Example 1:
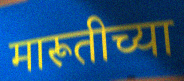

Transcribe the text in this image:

मारूतीच्या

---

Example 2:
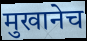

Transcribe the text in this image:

मुखानेच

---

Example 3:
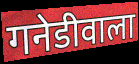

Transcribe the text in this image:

गनेडीवाला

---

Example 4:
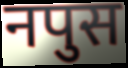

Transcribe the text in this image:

नपुस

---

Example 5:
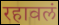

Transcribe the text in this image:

रहावलं